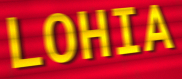
LOHIA